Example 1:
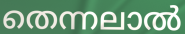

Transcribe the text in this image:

തെന്നലാൽ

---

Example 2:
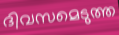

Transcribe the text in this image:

ദിവസമെടുത്ത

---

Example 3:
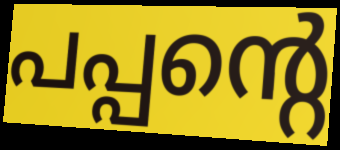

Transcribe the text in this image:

പപ്പന്റെ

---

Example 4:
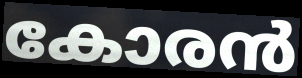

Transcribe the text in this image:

കോരൻ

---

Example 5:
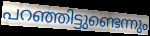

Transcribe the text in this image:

പറഞ്ഞിട്ടുണ്ടെന്നും